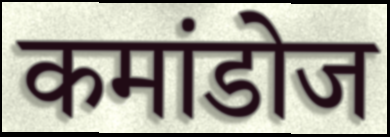
कमांडोज